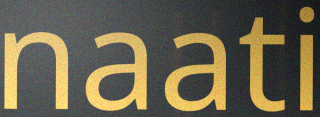
naati